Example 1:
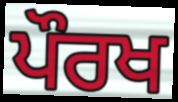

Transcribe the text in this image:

ਪੌਰਖ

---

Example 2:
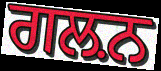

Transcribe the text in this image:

ਗਲ਼ਨ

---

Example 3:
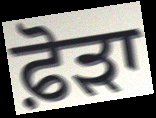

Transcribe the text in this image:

ਫ਼ੋੜਾ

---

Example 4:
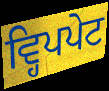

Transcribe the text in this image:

ਵ੍ਹਿਪਪੇਟ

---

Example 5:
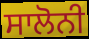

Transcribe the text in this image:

ਸਾਲੋਨੀ